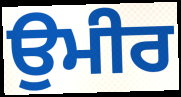
ਉਮੀਰ